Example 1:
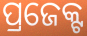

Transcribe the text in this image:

ପ୍ରଜେକ୍ଟ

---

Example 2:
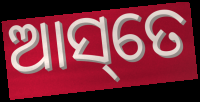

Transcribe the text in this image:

ଆସ୍‌ତେ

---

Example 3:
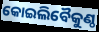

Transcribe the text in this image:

କୋଇଲିବୈକୁଣ୍ଠ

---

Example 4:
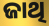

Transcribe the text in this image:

ଜାଥି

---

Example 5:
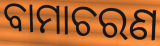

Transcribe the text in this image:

ବାମାଚରଣ